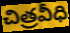
చిత్రవీధి